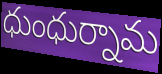
ధుంధుర్నామ